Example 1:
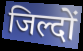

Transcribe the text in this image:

जिल्दों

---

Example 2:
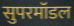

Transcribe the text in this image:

सुपरमॉडल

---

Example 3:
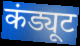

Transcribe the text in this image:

कंड्यूट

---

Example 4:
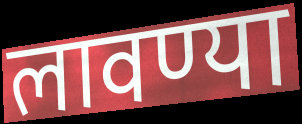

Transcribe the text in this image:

लावण्या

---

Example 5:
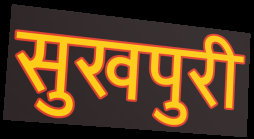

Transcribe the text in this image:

सुखपुरी